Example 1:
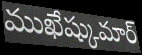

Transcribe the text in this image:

ముఖేష్కుమార్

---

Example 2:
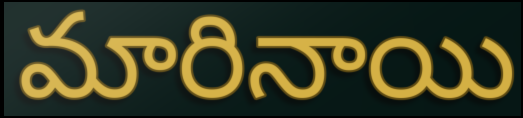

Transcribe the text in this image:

మారినాయి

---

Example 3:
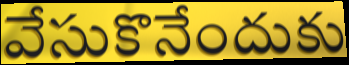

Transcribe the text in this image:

వేసుకొనేందుకు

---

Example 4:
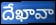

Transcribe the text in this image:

దేఖావా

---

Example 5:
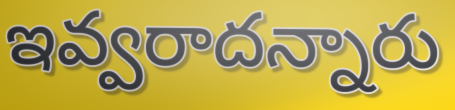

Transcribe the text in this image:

ఇవ్వరాదన్నారు